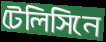
টেলিসিনে